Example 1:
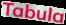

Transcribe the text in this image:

Tabula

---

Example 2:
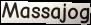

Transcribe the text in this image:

Massajog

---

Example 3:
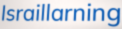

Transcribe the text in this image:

Israillarning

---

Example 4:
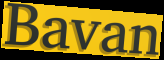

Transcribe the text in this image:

Bavan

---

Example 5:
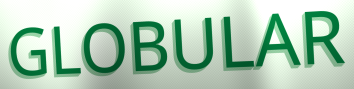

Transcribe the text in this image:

GLOBULAR